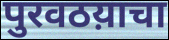
पुरवठय़ाचा